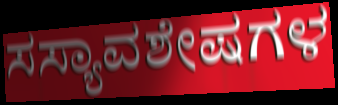
ಸಸ್ಯಾವಶೇಷಗಳ